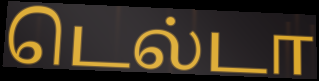
டெல்டா